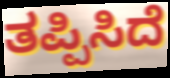
ತಪ್ಪಿಸಿದೆ